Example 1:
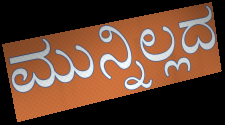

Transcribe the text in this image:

ಮುನ್ನಿಲ್ಲದ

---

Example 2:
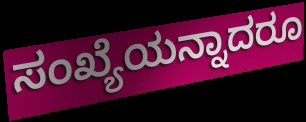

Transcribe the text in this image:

ಸಂಖ್ಯೆಯನ್ನಾದರೂ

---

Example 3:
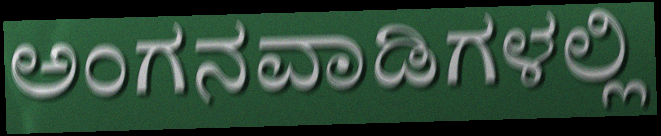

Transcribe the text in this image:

ಅಂಗನವಾಡಿಗಳಲ್ಲಿ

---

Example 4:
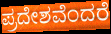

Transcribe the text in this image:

ಪ್ರದೇಶವೆಂದರೆ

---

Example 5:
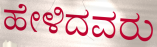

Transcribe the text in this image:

ಹೇಳಿದವರು